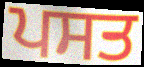
ਪਸਤ